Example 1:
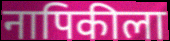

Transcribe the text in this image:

नापिकीला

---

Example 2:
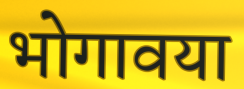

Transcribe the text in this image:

भोगावया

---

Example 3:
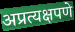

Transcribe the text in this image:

अप्रत्यक्षपणे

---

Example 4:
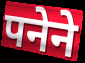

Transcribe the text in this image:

पनेने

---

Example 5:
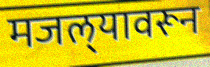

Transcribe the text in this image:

मजल्यावरून